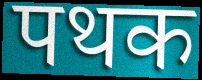
पथक